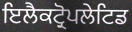
ਇਲੈਕਟ੍ਰੋਪਲੇਟਿਡ